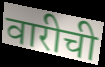
वारीची